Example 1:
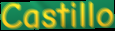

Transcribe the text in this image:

Castillo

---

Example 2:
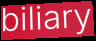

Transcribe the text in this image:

biliary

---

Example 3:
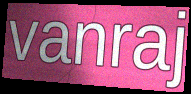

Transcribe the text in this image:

vanraj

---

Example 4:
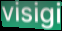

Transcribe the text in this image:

visigi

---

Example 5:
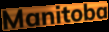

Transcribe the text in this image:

Manitoba